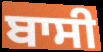
ਬਾਸੀ